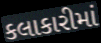
કલાકારીમાં